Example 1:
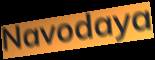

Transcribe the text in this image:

Navodaya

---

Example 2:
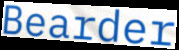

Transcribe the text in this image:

Bearder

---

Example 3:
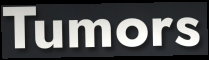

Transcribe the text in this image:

Tumors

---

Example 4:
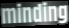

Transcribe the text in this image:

minding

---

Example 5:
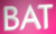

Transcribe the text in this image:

BAT